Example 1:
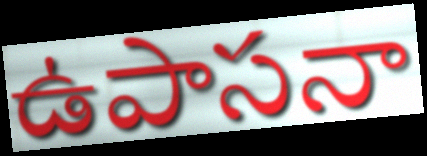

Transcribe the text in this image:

ఉపాసనా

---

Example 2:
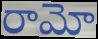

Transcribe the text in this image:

రామో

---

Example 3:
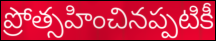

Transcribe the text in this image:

ప్రోత్సహించినప్పటికీ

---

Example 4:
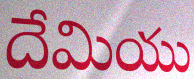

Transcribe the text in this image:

దేమియు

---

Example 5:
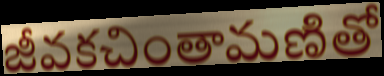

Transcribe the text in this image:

జీవకచింతామణితో